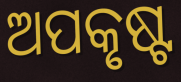
ଅପକୃଷ୍ଟ